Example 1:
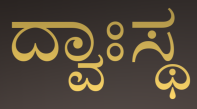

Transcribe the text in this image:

ದ್ವಾಃಸ್ಥ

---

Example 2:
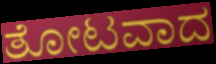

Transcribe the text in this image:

ತೋಟವಾದ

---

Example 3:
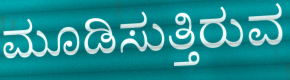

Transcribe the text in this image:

ಮೂಡಿಸುತ್ತಿರುವ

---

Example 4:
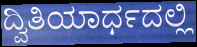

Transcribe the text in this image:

ದ್ವಿತಿಯಾರ್ಧದಲ್ಲಿ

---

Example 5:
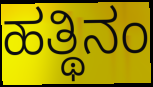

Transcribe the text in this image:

ಹತ್ಥಿನಂ